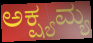
ಅಕ್ಷ್ಯಮ್ಯ